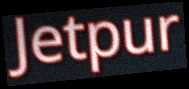
Jetpur